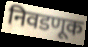
निवडणूक